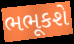
ભભૂકશે